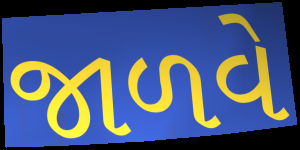
જાળવે